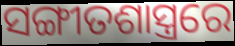
ସଙ୍ଗୀତଶାସ୍ତ୍ରରେ